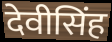
देवीसिंह